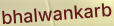
bhalwankarb